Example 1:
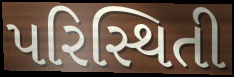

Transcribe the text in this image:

પરિસ્થિતી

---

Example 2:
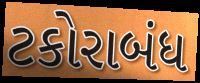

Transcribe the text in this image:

ટકોરાબંધ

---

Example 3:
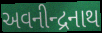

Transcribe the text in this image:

અવનીન્દ્રનાથ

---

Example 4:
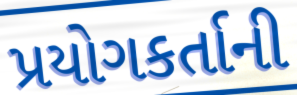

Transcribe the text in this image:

પ્રયોગકર્તાની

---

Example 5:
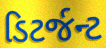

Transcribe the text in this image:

ડિટર્જન્ટ